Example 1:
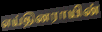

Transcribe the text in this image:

எய்தினராயின்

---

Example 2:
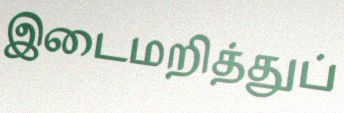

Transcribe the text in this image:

இடைமறித்துப்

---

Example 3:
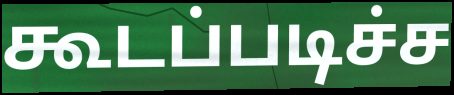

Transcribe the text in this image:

கூடப்படிச்ச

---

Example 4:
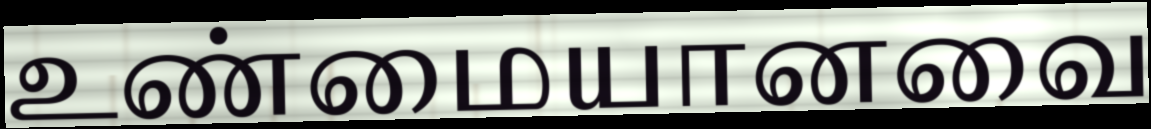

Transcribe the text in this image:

உண்மையானவை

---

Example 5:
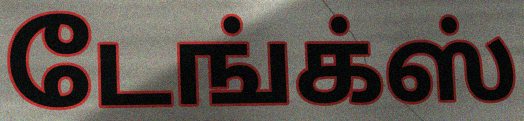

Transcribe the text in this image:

டேங்க்ஸ்